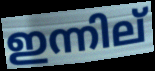
ഇന്നില്